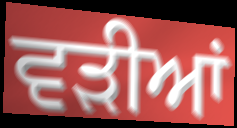
ਵੜੀਆਂ